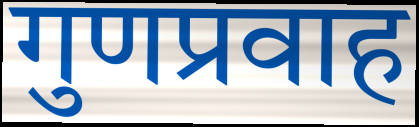
गुणप्रवाह